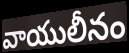
వాయులీనం